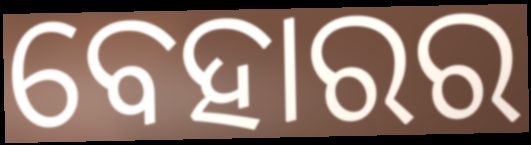
ବେହାରର